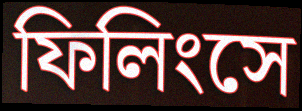
ফিলিংসে